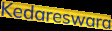
Kedareswara